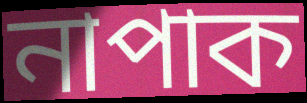
নাপাক